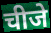
चीजे